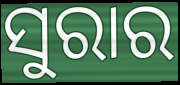
ସୁରାର